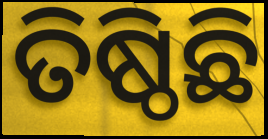
ତିଷ୍ଠିଛି